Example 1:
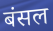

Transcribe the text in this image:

बंसल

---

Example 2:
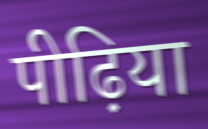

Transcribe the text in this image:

पीढ़िया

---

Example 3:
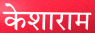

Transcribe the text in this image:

केशाराम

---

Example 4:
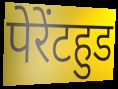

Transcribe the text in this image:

पेरेंटहुड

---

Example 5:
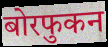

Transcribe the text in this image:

बोरफुकन